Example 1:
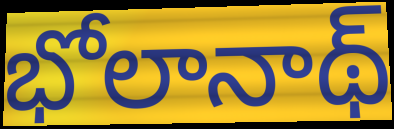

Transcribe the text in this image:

భోలానాథ్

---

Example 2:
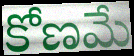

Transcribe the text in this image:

కోణమే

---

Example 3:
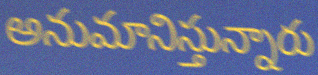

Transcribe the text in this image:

అనుమానిస్తున్నారు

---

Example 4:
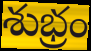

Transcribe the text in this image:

శుభ్రం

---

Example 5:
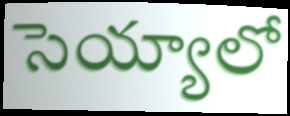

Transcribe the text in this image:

సెయ్యాలో